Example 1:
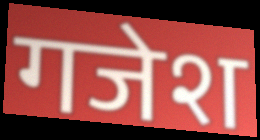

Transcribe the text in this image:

गजेश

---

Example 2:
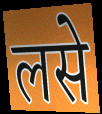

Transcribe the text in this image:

लसे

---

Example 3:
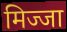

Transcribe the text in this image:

मिज्जा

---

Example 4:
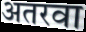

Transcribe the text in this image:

अतरवा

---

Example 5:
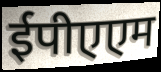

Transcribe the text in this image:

ईपीएएम